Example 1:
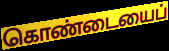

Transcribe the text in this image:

கொண்டையைப்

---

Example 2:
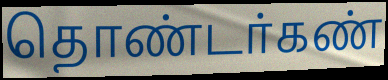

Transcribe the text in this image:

தொண்டர்கண்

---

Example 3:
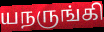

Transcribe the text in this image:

யநருங்கி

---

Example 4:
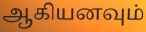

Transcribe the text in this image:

ஆகியனவும்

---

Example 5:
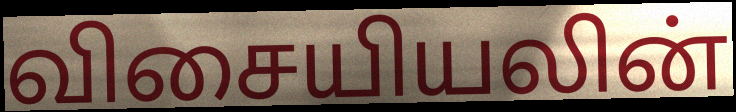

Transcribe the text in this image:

விசையியலின்